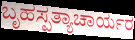
ಬೃಹಸ್ಪತ್ಯಾಚಾರ್ಯರ